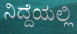
ನಿದ್ದೆಯಲ್ಲಿ